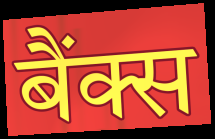
बैंक्स